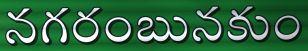
నగరంబునకుం